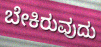
ಬೇಕಿರುವುದು